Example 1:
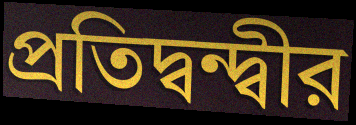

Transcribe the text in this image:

প্রতিদ্বন্দ্বীর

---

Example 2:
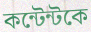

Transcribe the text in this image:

কন্টেন্টকে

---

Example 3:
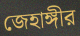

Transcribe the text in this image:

জেহাঙ্গীর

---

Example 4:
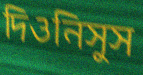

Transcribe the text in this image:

দিওনিসুস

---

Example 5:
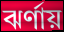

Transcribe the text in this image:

ঝর্ণায়